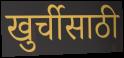
खुर्चीसाठी